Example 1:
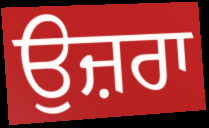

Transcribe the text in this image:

ਉਜ਼ਰਾ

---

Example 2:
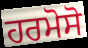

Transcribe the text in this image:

ਹਰਮੋਸੋ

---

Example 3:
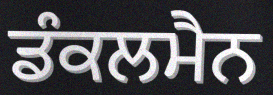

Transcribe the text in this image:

ਡੰਕਲਮੈਨ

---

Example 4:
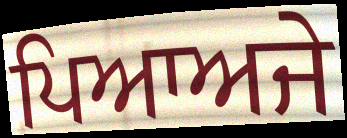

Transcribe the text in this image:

ਪਿਆਅਜੇ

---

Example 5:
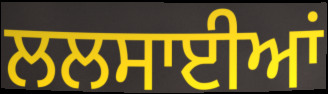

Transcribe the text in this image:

ਲਲਸਾਈਆਂ